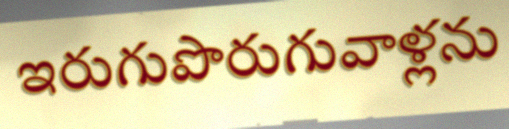
ఇరుగుపొరుగువాళ్లను